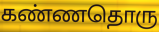
கண்ணதொரு